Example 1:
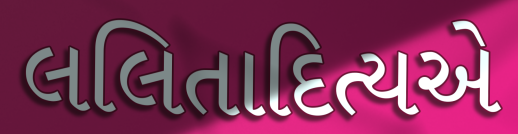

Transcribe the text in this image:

લલિતાદિત્યએ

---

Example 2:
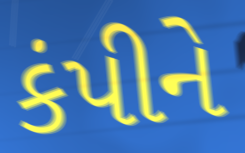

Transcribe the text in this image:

કંપીને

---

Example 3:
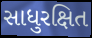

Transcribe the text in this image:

સાધુરક્ષિત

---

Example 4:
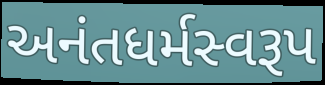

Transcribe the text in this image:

અનંતધર્મસ્વરૂપ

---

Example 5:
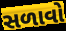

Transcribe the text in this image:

સળાવો